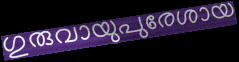
ഗുരുവായുപുരേശായ